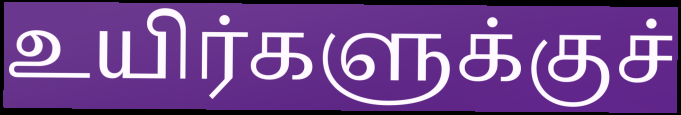
உயிர்களுக்குச்